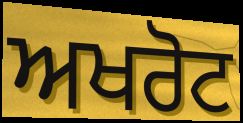
ਅਖਰੋਟ